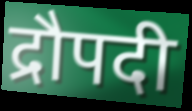
द्रौपदी